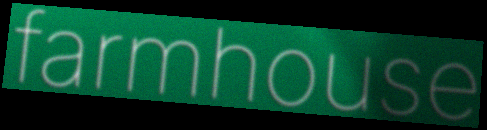
farmhouse